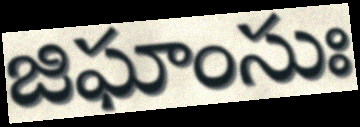
జిఘాంసుః